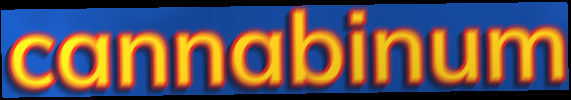
cannabinum